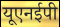
यूएनईपी